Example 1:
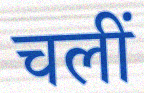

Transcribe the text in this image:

चलीं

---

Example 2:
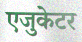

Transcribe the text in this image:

एजुकेटर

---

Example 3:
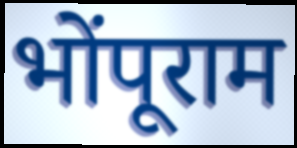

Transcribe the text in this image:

भोंपूराम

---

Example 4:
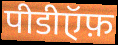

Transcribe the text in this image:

पीडीऍफ़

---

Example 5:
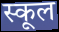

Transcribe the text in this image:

स्कूल